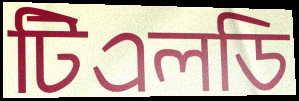
টিএলডি